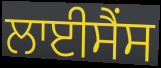
ਲਾਈਸੈਂਸ